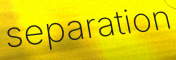
separation